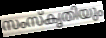
സംസ്കൃതിയും